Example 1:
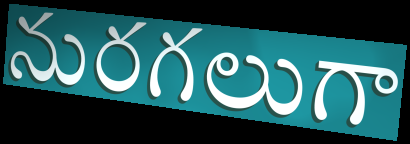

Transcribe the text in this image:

నురగలుగా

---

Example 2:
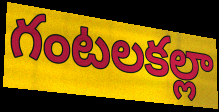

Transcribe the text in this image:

గంటలకల్లా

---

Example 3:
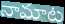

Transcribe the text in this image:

నామాట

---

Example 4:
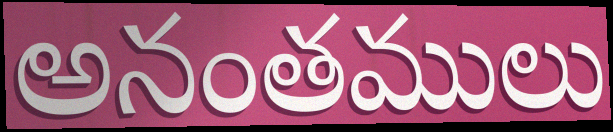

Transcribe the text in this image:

అనంతములు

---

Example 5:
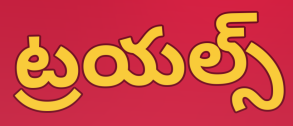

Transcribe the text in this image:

ట్రయల్స్